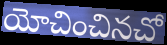
యోచించినచో